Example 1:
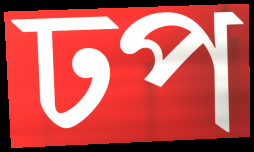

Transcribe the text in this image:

ঢপ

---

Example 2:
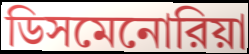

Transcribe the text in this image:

ডিসমেনোরিয়া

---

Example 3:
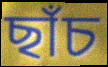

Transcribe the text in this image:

ছাঁচ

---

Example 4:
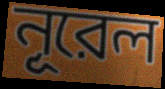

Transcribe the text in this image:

নূরেল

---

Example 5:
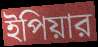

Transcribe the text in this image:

ইপিয়ার